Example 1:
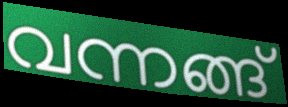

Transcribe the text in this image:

വന്നങ്ങ്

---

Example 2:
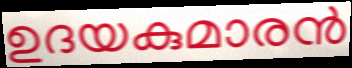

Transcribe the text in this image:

ഉദയകുമാരൻ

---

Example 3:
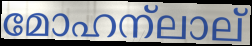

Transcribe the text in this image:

മോഹന്ലാല്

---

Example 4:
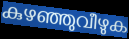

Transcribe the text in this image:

കുഴഞ്ഞുവീഴുക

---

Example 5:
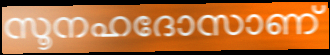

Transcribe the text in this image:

സൂനഹദോസാണ്